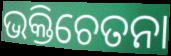
ଭକ୍ତିଚେତନା